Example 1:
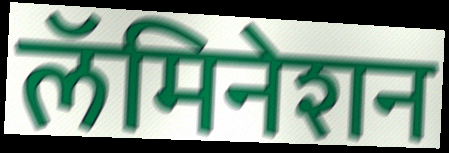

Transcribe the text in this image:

लॅमिनेशन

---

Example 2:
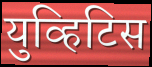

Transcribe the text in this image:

युव्हिटिस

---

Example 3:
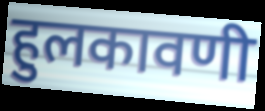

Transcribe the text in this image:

हुलकावणी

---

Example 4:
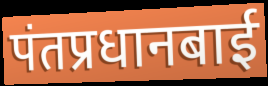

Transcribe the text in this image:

पंतप्रधानबाई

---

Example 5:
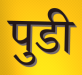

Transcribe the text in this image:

पुडी